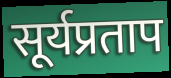
सूर्यप्रताप